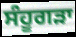
ਸੰਹੂਗੜਾ